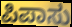
ಪಿಪಾಸು